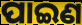
ପାଇଣ